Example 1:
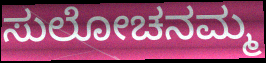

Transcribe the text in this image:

ಸುಲೋಚನಮ್ಮ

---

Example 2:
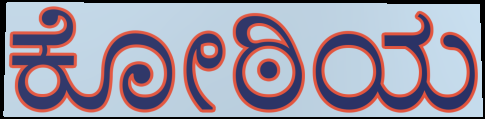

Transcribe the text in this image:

ಕೋಠಿಯ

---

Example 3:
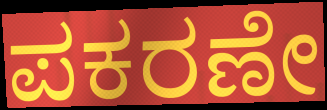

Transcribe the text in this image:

ಪಕರಣೇ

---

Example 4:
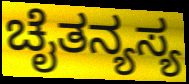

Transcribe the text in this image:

ಚೈತನ್ಯಸ್ಯ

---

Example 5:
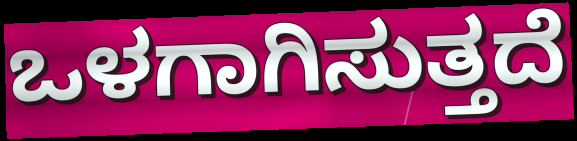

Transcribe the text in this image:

ಒಳಗಾಗಿಸುತ್ತದೆ